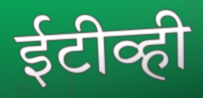
ईटीव्ही